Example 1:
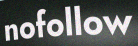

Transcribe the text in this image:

nofollow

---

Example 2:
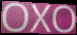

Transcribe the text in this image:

OXO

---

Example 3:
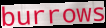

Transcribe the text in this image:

burrows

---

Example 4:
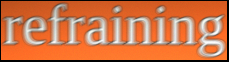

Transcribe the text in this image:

refraining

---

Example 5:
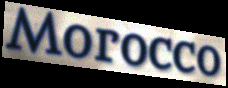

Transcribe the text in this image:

Morocco